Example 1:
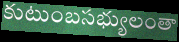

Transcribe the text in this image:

కుటుంబసభ్యులంతా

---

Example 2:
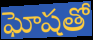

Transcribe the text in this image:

ఘోషతో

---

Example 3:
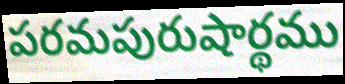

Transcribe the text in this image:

పరమపురుషార్థము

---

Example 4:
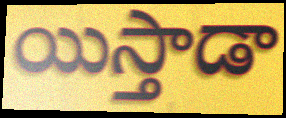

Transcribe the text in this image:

యిస్తాడా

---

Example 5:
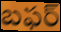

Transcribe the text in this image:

బఫర్